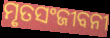
ମୃତସଂଜୀବନୀ